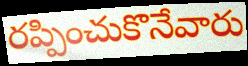
రప్పించుకొనేవారు